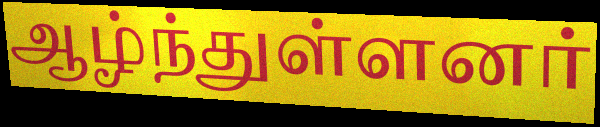
ஆழ்ந்துள்ளனர்